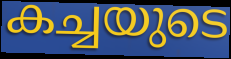
കച്ചയുടെ